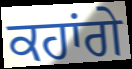
ਕਹਾਂਗੇ